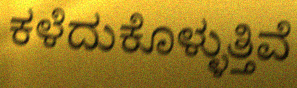
ಕಳೆದುಕೊಳ್ಳುತ್ತಿವೆ